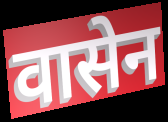
वासेन